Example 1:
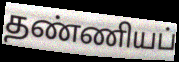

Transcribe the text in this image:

தண்ணியப்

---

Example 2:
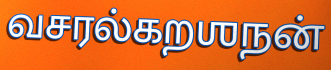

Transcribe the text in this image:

வசரல்கறஶநன்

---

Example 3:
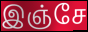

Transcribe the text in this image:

இஞ்சே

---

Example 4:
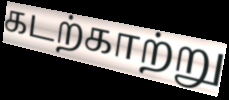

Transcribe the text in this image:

கடற்காற்று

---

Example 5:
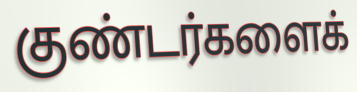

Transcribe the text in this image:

குண்டர்களைக்